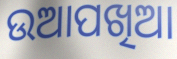
ଉଆପଖିଆ